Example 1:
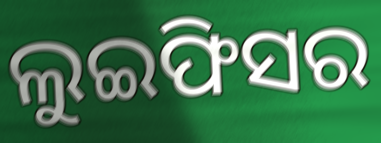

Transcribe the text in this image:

ଲୁଇଫିସର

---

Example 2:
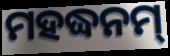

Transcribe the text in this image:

ମହଦ୍ଧନମ୍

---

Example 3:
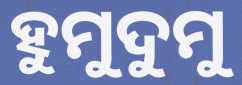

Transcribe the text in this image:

ହୁମୁଦୁମୁ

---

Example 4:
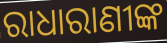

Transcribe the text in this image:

ରାଧାରାଣୀଙ୍କ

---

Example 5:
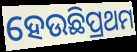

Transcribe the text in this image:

ହେଉଛିପ୍ରଥମ